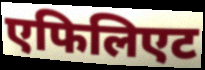
एफिलिएट